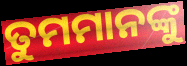
ତୁମମାନଙ୍କୁ